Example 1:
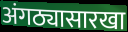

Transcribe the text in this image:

अंगठ्यासारखा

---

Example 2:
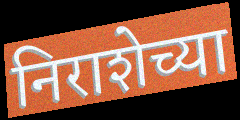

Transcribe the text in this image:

निराशेच्या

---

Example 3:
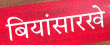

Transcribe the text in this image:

बियांसारखे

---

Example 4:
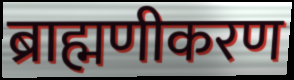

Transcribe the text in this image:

ब्राह्मणीकरण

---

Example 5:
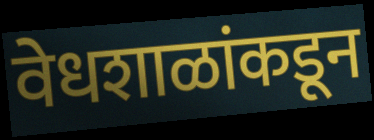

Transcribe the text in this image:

वेधशाळांकडून